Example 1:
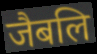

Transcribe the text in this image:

जैबलि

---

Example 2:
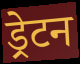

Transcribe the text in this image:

ड्रेटन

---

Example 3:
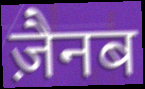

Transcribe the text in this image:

ज़ैनब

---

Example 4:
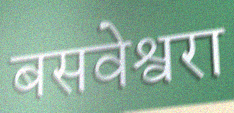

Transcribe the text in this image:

बसवेश्वरा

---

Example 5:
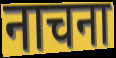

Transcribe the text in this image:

नाचना